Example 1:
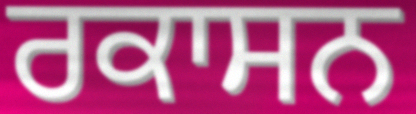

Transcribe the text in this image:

ਰਕਾਸਨ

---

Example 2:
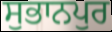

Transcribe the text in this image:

ਸੁਭਾਨਪੁਰ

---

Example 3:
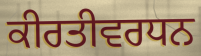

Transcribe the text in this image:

ਕੀਰਤੀਵਰਧਨ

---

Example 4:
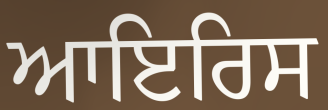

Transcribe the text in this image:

ਆਇਰਿਸ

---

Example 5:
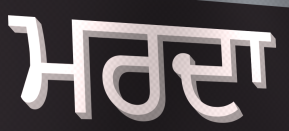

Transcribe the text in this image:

ਮਰਦਾ